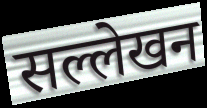
सल्लेखन